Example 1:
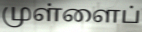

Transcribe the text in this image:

முள்ளைப்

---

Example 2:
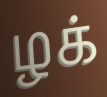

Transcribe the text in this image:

ழக்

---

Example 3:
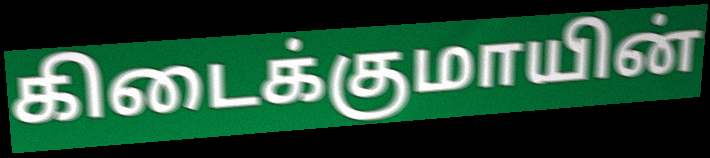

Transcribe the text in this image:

கிடைக்குமாயின்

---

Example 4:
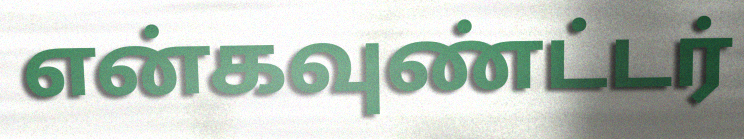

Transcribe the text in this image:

என்கவுண்ட்டர்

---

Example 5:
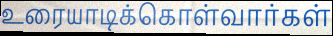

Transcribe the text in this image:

உரையாடிக்கொள்வார்கள்